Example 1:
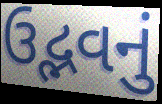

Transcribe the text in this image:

ઉદ્ભવનું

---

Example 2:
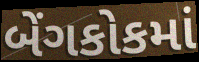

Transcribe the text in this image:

બેંગકોકમાં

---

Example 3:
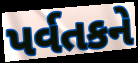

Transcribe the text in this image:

પર્વતકને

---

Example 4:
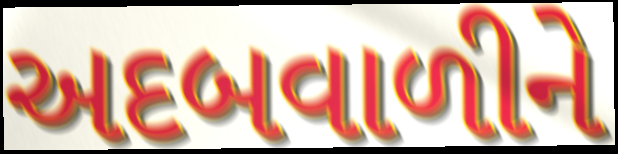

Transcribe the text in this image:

અદબવાળીને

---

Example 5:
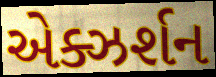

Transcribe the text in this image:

એક્ઝર્શન